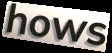
hows